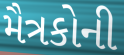
મૈત્રકોની